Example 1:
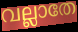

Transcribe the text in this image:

വല്ലാതേ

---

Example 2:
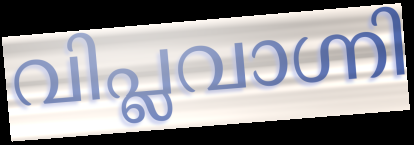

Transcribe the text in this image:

വിപ്ലവാഗ്നി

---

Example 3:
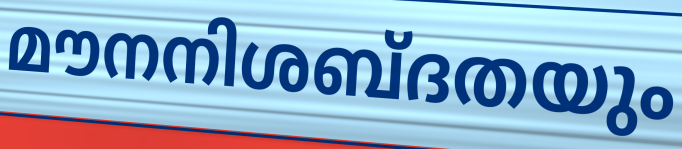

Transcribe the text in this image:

മൗനനിശബ്ദതയും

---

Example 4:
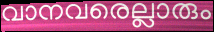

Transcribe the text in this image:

വാനവരെല്ലാരും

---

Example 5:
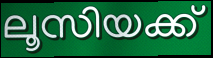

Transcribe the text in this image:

ലൂസിയക്ക്